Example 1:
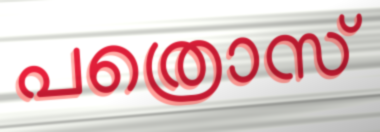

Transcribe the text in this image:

പത്രൊസ്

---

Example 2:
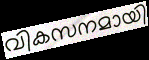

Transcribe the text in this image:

വികസനമായി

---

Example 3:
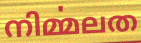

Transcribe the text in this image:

നിൎമ്മലത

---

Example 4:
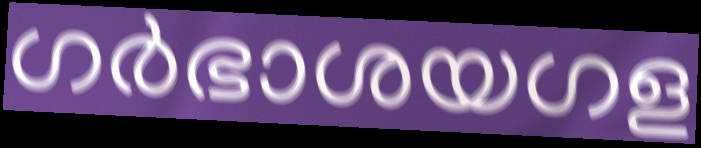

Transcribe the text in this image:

ഗർഭാശയഗള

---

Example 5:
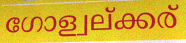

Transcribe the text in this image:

ഗോള്വല്ക്കര്